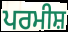
ਪਰਮੀਸ਼